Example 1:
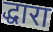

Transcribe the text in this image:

द्धारा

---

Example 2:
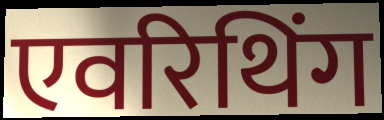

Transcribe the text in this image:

एवरिथिंग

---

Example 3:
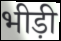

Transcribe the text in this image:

भीड़ी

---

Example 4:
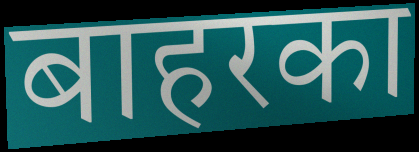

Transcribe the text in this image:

बाहरका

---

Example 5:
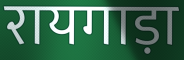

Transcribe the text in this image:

रायगाड़ा